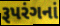
રૂપરંગનાં